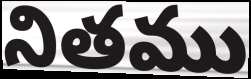
నితము